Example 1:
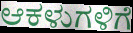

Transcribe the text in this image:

ಆಕಳುಗಳಿಗೆ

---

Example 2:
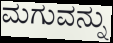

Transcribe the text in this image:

ಮಗುವನ್ನು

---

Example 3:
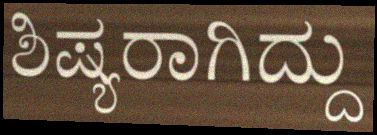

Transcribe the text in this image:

ಶಿಷ್ಯರಾಗಿದ್ದು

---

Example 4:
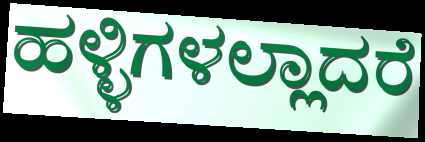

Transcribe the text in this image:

ಹಳ್ಳಿಗಳಲ್ಲಾದರೆ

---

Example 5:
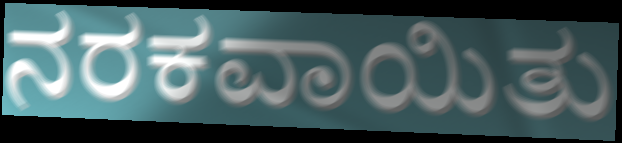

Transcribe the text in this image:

ನರಕವಾಯಿತು